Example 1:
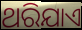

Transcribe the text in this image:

ଥରିଯାଏ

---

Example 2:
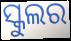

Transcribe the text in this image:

ସ୍କୁଲର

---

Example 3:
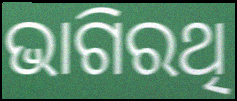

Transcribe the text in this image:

ଭାଗିରଥି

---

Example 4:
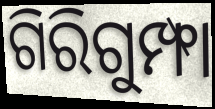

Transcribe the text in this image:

ଗିରିଗୁମ୍ଫା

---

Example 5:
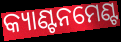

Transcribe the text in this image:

କ୍ୟାଣ୍ଟନମେଣ୍ଟ